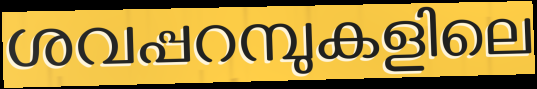
ശവപ്പറമ്പുകളിലെ